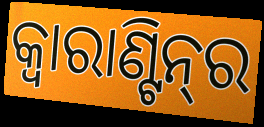
କ୍ବାରାଣ୍ଟିନ୍‌ର